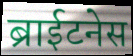
ब्राईटनेस